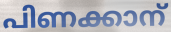
പിണക്കാന്